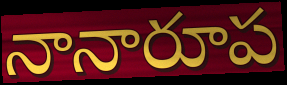
నానారూప